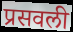
प्रसवली